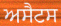
ਅਸੈਟਸ